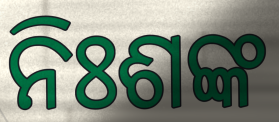
ନିଃଶଙ୍କ